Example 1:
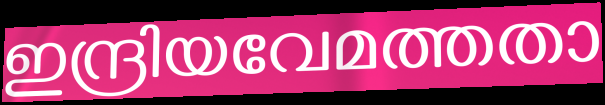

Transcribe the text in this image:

ഇന്ദ്രിയവേമത്തതാ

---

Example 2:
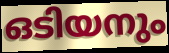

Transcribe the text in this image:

ഒടിയനും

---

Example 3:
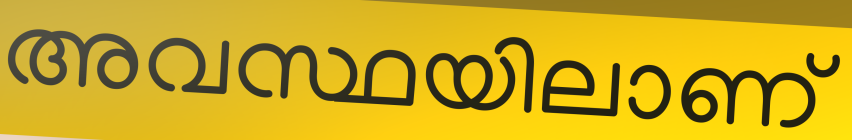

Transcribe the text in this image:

അവസ്ഥയിലാണ്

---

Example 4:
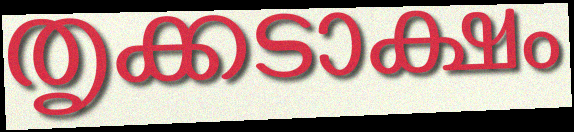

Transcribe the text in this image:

തൃക്കടാക്ഷം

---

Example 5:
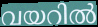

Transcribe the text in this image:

വയറിൽ